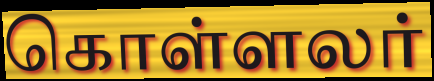
கொள்ளலர்